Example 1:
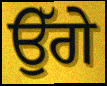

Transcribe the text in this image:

ਉੱਗੇ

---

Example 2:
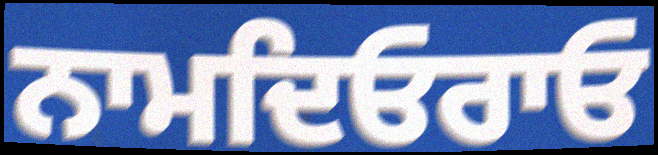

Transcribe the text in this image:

ਨਾਮਦਿਓਰਾਓ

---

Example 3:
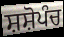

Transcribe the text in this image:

ਸ਼ਸ਼ੋਪੰਚ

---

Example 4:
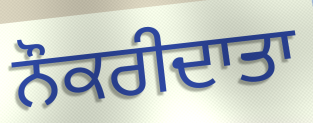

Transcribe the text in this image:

ਨੌਕਰੀਦਾਤਾ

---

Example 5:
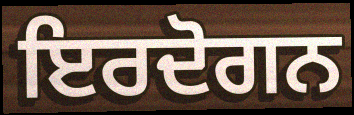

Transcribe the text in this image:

ਇਰਦੋਗਨ